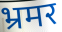
भ्रमर